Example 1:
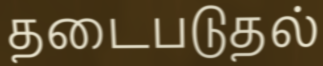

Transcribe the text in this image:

தடைபடுதல்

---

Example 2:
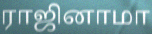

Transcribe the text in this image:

ராஜினாமா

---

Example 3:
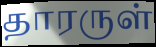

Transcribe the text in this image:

தாரருள்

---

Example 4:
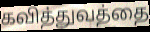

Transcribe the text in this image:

கவித்துவத்தை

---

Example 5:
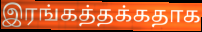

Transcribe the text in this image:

இரங்கத்தக்கதாக